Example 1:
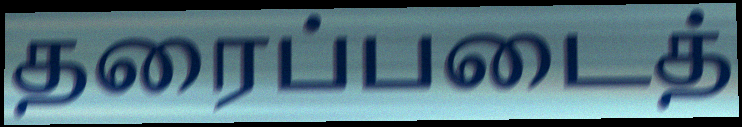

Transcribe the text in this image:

தரைப்படைத்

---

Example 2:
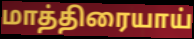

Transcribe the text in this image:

மாத்திரையாய்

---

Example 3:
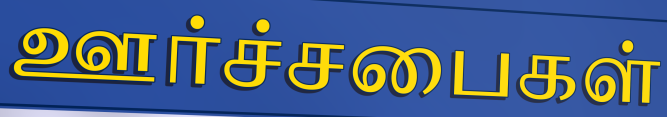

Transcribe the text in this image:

ஊர்ச்சபைகள்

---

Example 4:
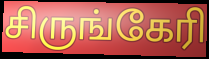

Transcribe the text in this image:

சிருங்கேரி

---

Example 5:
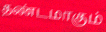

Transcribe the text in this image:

தண்டமாகும்